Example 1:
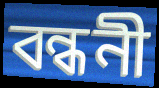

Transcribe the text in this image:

বন্ধনী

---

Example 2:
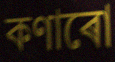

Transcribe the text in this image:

কণাৰো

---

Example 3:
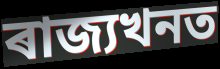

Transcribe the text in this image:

ৰাজ্যখনত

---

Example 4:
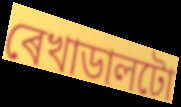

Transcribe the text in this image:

ৰেখাডালটো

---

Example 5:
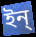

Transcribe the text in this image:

ইন্